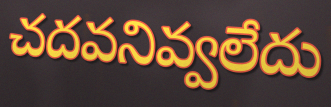
చదవనివ్వలేదు